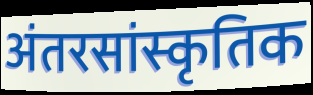
अंतरसांस्कृतिक